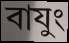
বাযুং